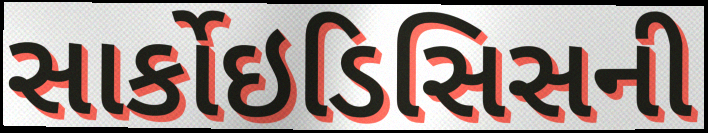
સાર્કોઇડિસિસની